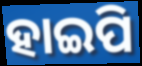
ହାଇପି